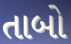
તાબો